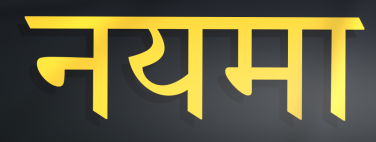
नयमा